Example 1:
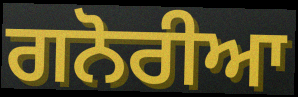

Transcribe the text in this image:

ਗਨੋਰੀਆ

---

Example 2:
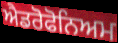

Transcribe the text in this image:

ਐਡਰੋਫੋਨਿਅਮ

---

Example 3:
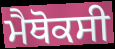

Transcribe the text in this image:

ਮੈਥੋਕਸੀ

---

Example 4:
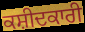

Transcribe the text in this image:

ਕਸ਼ੀਦਕਾਰੀ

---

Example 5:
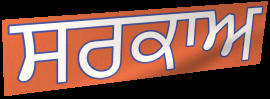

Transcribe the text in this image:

ਸਰਕਾਅ